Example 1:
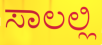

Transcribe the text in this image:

ಸಾಲಲ್ಲಿ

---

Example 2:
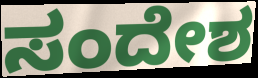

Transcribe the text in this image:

ಸಂದೇಶ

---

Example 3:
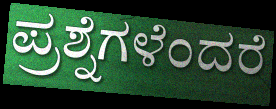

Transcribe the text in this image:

ಪ್ರಶ್ನೆಗಳೆಂದರೆ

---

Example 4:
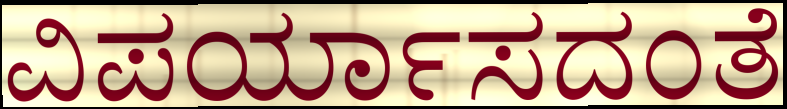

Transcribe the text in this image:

ವಿಪರ್ಯಾಸದಂತೆ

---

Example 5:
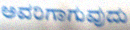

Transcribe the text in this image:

ಅವರಿಗಾಗುವುದು